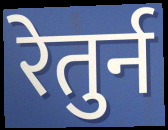
रेतुर्न